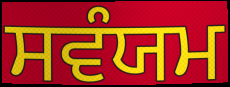
ਸਵੰਯਮ